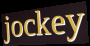
jockey